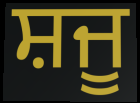
ਸ਼ਜੂ